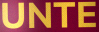
UNTE